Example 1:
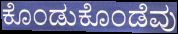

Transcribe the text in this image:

ಕೊಂಡುಕೊಂಡೆವು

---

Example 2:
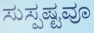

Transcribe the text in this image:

ಸುಸ್ಪಷ್ಟವೂ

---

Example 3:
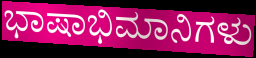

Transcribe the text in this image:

ಭಾಷಾಭಿಮಾನಿಗಳು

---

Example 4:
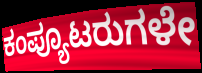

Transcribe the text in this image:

ಕಂಪ್ಯೂಟರುಗಳೇ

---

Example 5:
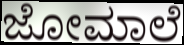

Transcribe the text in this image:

ಜೋಮಾಲೆ